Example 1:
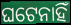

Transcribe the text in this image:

ଘଟେନାହିଁ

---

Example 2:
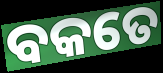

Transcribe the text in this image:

ବକତେ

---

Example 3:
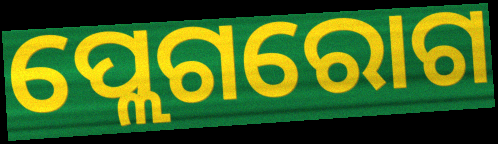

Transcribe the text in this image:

ପ୍ଲେଗରୋଗ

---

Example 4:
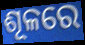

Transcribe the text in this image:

ଶୂଳରେ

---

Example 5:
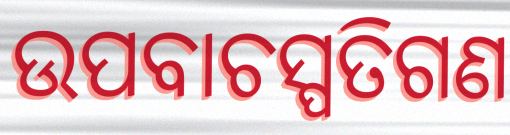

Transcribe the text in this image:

ଉପବାଚସ୍ପତିଗଣ